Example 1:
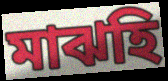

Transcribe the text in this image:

মাঝহি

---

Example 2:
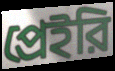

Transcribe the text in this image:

প্রেইরি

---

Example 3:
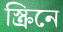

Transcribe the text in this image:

স্ক্রিনে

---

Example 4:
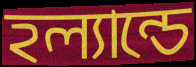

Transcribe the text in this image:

হল্যান্ডে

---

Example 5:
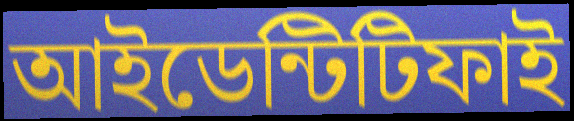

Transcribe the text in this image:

আইডেন্টিটিফাই